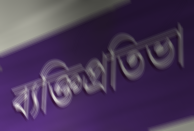
ব্যক্তিপ্রতিভা